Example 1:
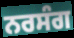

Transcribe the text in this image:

ਨਰਸੰਗ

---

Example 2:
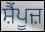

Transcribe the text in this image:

ਸ਼ੈਂਪੂਜ਼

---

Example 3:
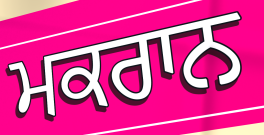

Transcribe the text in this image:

ਮਕਰਾਨ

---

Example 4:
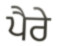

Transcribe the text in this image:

ਪੈਰੇ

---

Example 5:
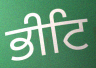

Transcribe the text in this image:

ਭੀਟਿ